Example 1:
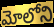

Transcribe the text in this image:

మోలోని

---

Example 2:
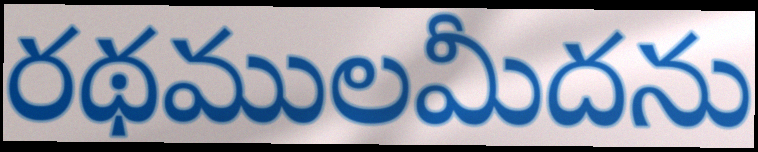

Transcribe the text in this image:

రథములమీదను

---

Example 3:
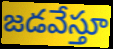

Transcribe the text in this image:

జడవేస్తూ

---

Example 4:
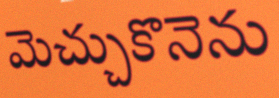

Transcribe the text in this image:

మెచ్చుకొనెను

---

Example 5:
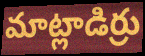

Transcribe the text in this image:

మాట్లాడిర్రు